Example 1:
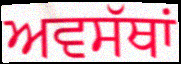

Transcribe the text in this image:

ਅਵਸੱਥਾਂ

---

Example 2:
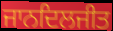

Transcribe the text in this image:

ਜਾਨਦਿਲਜੀਤ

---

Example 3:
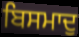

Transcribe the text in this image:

ਬਿਸਮਾਦੁ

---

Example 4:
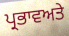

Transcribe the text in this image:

ਪ੍ਰਭਾਵਅਤੇ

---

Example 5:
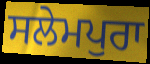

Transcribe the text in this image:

ਸਲੇਮਪੁਰਾ